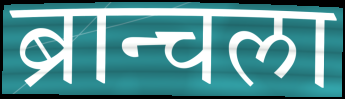
ब्रान्चला